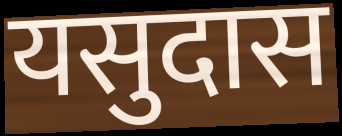
यसुदास